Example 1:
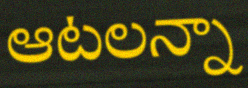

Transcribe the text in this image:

ఆటలన్నా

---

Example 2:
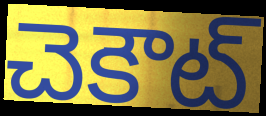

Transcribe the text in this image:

చెకౌట్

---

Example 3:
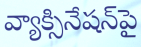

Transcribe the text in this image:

వ్యాక్సినేషన్‌పై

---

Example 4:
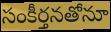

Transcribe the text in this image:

సంకీర్తనతోనూ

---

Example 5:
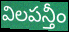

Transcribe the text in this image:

విలపన్తీం